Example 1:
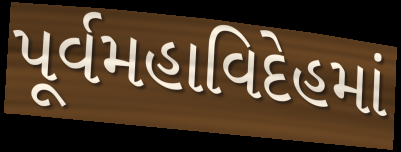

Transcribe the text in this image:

પૂર્વમહાવિદેહમાં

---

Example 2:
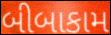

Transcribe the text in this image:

બીબાકામ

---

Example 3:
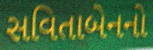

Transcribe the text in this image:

સવિતાબેનનો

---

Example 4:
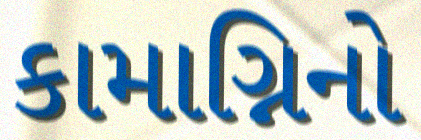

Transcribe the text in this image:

કામાગ્નિનો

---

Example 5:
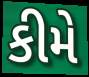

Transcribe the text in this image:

કીમે